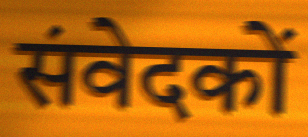
संवेदकों